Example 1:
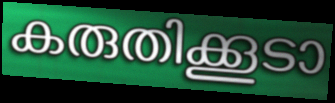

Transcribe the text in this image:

കരുതിക്കൂടാ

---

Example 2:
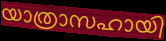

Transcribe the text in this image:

യാത്രാസഹായി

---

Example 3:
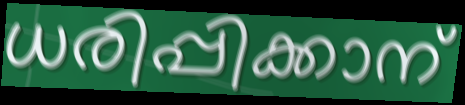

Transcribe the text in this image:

ധരിപ്പിക്കാന്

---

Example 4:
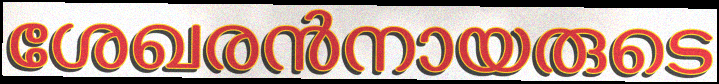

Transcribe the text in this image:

ശേഖരൻനായരുടെ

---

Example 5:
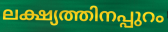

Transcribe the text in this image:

ലക്ഷ്യത്തിനപ്പുറം